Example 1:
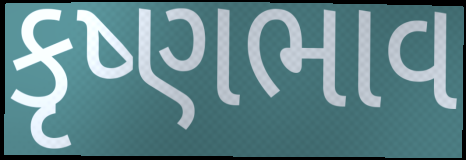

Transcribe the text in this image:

કૃષ્ણભાવ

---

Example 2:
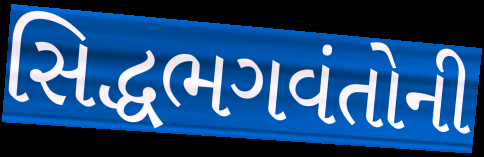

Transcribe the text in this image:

સિદ્ધભગવંતોની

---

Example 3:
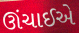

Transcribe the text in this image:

ઊંચાઈએ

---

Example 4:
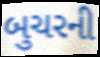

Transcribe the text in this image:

બુચરની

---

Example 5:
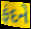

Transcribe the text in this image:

ફંદને